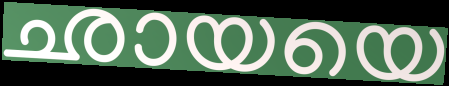
ഛായയെ